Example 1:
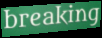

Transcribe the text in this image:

breaking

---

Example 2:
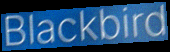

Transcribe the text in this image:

Blackbird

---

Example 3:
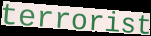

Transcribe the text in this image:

terrorist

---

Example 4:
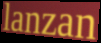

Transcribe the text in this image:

lanzan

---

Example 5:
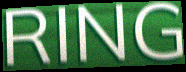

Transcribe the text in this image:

RING